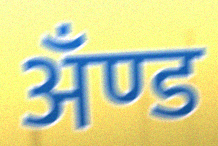
अँण्ड